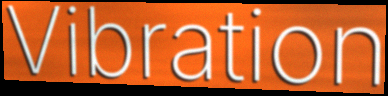
Vibration